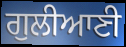
ਗੁਲੀਆਣੀ